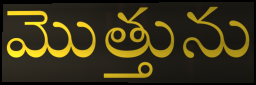
మొత్తును